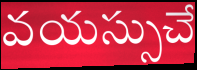
వయస్సుచే